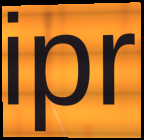
ipr